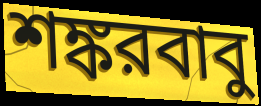
শঙ্করবাবু